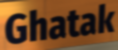
Ghatak